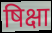
षिक्षा